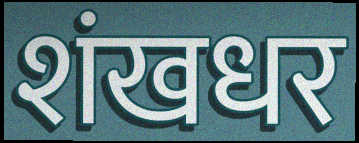
शंखधर